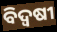
ବିଦ୍ୱଷୀ